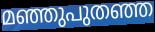
മഞ്ഞുപുതഞ്ഞ